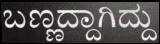
ಬಣ್ಣದ್ದಾಗಿದ್ದು